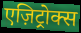
एज़िट्रोक्स